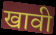
खावी